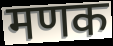
मणक